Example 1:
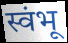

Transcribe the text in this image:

स्वंभू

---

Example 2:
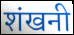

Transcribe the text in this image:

शंखनी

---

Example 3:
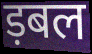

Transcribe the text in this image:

ड़बल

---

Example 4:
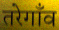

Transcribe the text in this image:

तरेगाँव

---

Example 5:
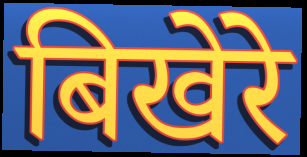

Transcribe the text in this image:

बिखेरे